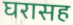
घरासह